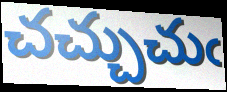
చచ్చుచుఁ